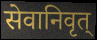
सेवानिवृत्